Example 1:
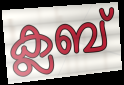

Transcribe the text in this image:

ക്ലബ്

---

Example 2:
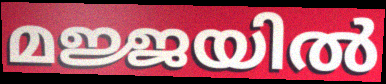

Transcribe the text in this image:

മജ്ജയിൽ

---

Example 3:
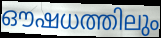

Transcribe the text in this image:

ഔഷധത്തിലും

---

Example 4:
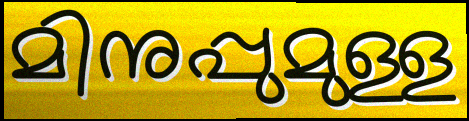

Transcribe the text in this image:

മിനുപ്പുമുള്ള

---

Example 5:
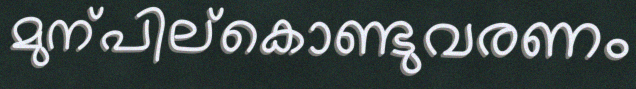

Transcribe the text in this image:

മുന്പില്കൊണ്ടുവരണം